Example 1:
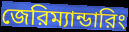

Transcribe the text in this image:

জেরিম্যান্ডারিং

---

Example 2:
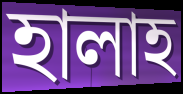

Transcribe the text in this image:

হালাহ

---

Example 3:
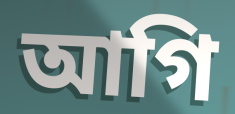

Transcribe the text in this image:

আগি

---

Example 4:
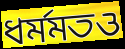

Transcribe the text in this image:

ধর্মমতও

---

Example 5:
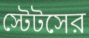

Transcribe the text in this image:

স্টেটসের